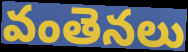
వంతెనలు